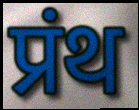
प्रंथ